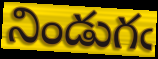
నిండుగఁ